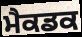
ਮੈਕਡਕ